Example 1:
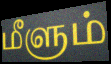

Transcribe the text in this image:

மீளும்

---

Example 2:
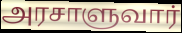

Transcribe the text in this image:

அரசாளுவார்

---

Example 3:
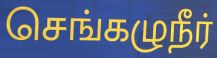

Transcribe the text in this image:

செங்கழுநீர்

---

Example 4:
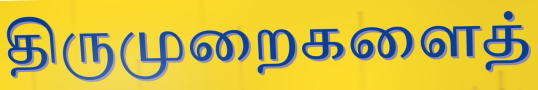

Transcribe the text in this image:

திருமுறைகளைத்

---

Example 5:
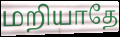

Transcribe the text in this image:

மறியாதே